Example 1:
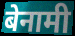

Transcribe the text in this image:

बेनामी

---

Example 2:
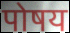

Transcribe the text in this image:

पोषय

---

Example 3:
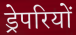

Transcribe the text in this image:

ड्रेपरियों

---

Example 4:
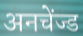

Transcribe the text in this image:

अनचेंज्ड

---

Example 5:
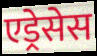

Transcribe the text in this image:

एड्रेसेस